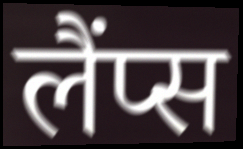
लैंप्स